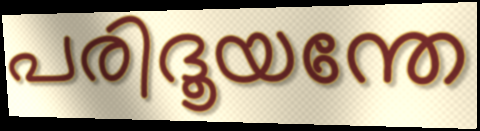
പരിദൂയന്തേ